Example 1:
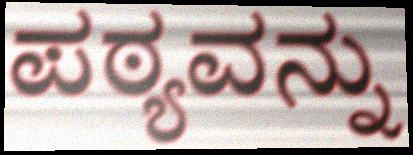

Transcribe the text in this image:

ಪಠ್ಯವನ್ನು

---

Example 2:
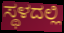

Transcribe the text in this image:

ಸ್ಥಳದಲ್ಲಿ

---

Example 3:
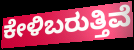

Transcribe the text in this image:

ಕೇಳಿಬರುತ್ತಿವೆ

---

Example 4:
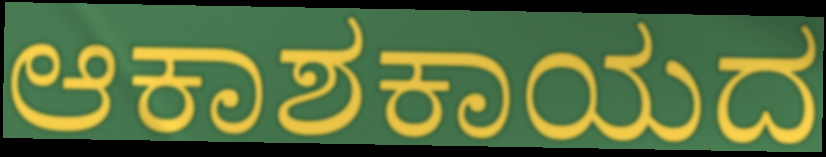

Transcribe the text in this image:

ಆಕಾಶಕಾಯದ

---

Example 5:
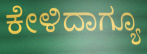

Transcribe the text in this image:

ಕೇಳಿದಾಗ್ಯೂ